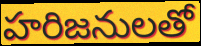
హరిజనులతో